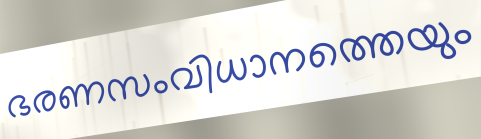
ഭരണസംവിധാനത്തെയും